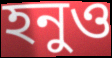
হনুও